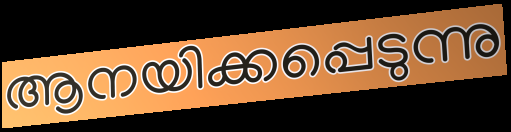
ആനയിക്കപ്പെടുന്നു